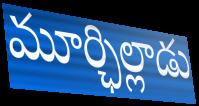
మూర్ఛిల్లాడు